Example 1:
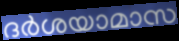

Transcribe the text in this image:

ദർശയാമാസ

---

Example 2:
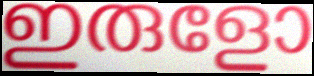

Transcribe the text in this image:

ഇരുളോ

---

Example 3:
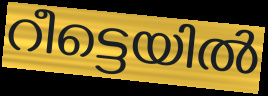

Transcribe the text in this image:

റീട്ടെയിൽ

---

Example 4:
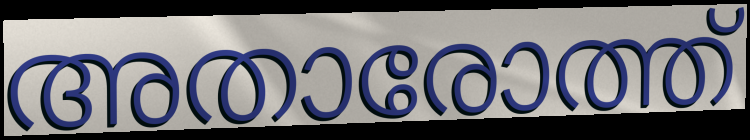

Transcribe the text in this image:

അതാരോത്ത്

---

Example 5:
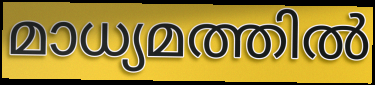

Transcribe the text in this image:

മാധ്യമത്തിൽ